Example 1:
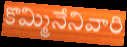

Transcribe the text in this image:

కొమ్మినేనివారి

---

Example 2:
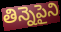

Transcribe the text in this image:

తిన్నెపైని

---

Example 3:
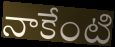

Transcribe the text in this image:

నాకేంటి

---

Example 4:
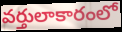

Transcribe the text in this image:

వర్తులాకారంలో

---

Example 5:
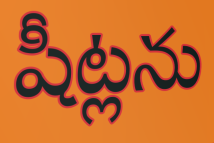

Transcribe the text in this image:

షీట్లను